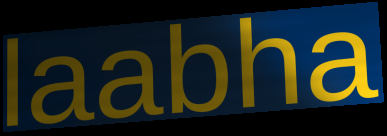
laabha